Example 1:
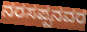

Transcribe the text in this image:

ನರಸಪ್ಪನವರ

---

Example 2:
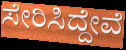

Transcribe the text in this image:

ಸೇರಿಸಿದ್ದೇವೆ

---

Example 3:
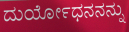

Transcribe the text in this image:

ದುರ್ಯೋಧನನನ್ನು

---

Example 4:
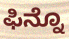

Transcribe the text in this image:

ಫಿನ್ನೊ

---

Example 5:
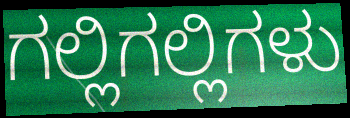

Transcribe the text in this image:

ಗಲ್ಲಿಗಲ್ಲಿಗಳು